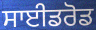
ਸਾਈਡਰੋਡ